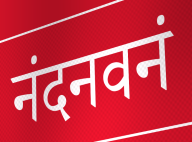
नंदनवनं